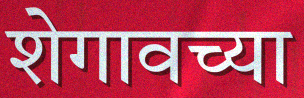
शेगावच्या